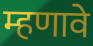
म्हणावे